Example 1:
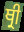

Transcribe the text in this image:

ਥ੍ਰੀ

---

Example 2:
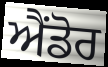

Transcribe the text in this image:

ਐਂਡੋਰ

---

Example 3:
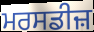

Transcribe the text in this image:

ਮਰਸਡੀਜ਼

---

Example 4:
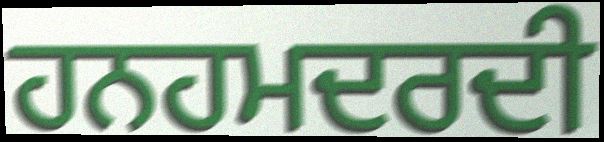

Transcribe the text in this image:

ਹਨਹਮਦਰਦੀ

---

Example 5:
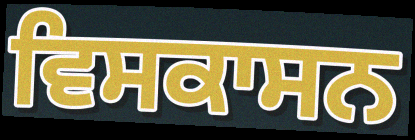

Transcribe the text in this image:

ਵਿਸਕਾਸਨ